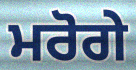
ਮਰੋਗੇ